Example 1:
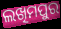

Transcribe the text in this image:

ଲଖିମପୁର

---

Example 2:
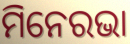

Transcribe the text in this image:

ମିନେରଭା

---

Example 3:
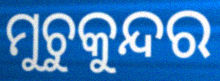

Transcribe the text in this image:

ମୁଚୁକୁନ୍ଦର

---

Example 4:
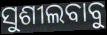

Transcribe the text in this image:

ସୁଶୀଲବାବୁ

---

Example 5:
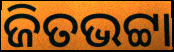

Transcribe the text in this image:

ଜିତଭଟ୍ଟା